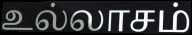
உல்லாசம்